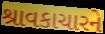
શ્રાવકાચારને